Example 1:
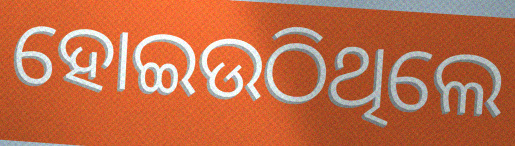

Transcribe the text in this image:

ହୋଇଉଠିଥିଲେ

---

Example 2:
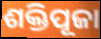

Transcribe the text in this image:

ଶକ୍ତିପୂଜା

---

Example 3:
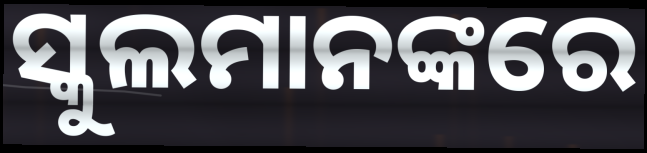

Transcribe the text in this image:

ସ୍କୁଲମାନଙ୍କରେ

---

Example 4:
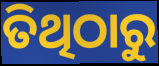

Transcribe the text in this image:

ତିଥିଠାରୁ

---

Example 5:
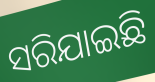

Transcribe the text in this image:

ସରିଯାଇଛି